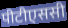
पीटीएससी